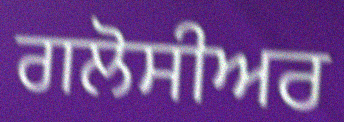
ਗਲੋਸੀਅਰ